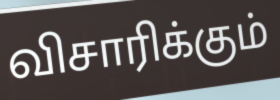
விசாரிக்கும்